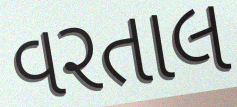
વરતાલ